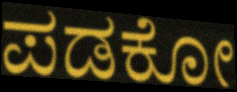
ಪಡಕೋ